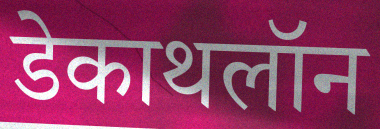
डेकाथलॉन